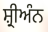
ਸ਼੍ਰੀਅੰਨ